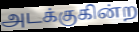
அடக்குகின்ற